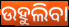
ଉହୁଲିବା